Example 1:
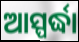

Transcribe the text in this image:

ଆସ୍ପର୍ଦ୍ଧା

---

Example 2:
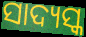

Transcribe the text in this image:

ସାଦ୍ୟସ୍କ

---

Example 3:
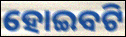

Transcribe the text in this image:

ହୋଇବଟି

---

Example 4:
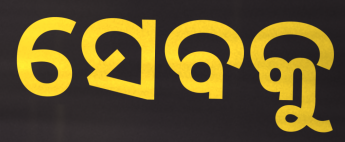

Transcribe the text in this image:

ସେବକୁ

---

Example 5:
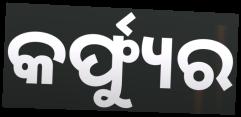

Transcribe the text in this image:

କର୍ଫ୍ୟୁର